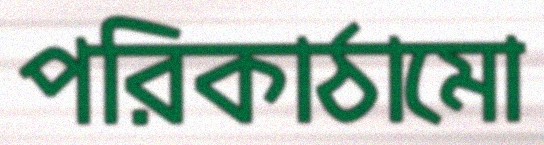
পরিকাঠামো